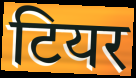
टियर